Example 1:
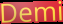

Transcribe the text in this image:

Demi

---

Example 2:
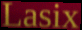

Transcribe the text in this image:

Lasix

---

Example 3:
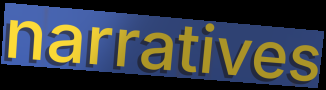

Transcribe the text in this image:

narratives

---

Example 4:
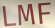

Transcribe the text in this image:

LMF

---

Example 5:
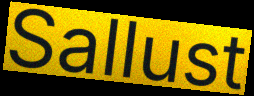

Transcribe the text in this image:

Sallust